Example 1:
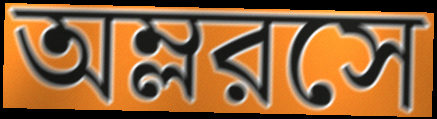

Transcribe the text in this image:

অম্লরসে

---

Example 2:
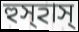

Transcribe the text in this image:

হুস্‌হাস্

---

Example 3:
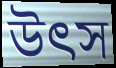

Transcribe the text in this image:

উত্‍স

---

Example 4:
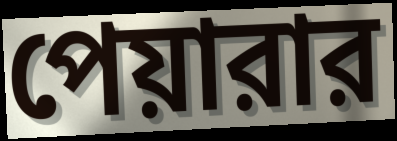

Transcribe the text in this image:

পেয়ারার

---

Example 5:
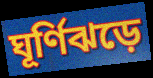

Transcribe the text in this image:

ঘূর্ণিঝড়ে